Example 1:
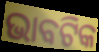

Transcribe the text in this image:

ଭାବଟିକ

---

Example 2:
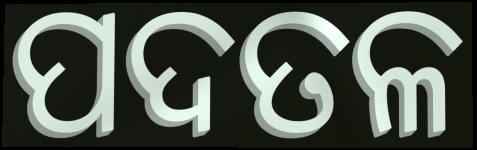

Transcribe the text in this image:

ପଦତଳ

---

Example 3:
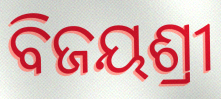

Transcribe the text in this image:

ବିଜୟଶ୍ରୀ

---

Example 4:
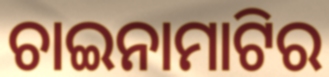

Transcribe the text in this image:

ଚାଇନାମାଟିର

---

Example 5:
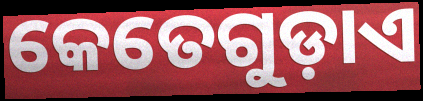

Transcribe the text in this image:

କେତେଗୁଡ଼ାଏ